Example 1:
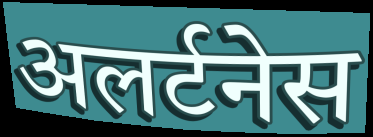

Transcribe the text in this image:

अलर्टनेस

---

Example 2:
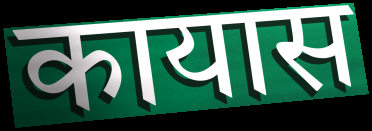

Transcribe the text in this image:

कायास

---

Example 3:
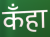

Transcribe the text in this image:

कँहा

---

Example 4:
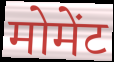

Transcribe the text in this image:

मोमेंट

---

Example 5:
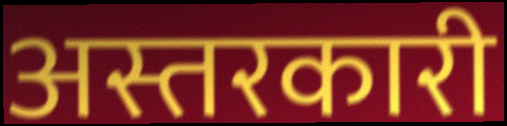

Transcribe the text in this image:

अस्तरकारी